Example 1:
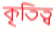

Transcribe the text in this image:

কৃতিত্ব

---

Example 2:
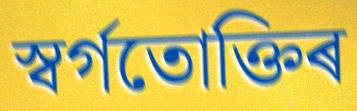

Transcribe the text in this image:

স্বৰ্গতোক্তিৰ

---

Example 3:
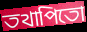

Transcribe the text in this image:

তথাপিতো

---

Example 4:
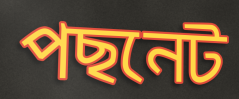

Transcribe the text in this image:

পছনেট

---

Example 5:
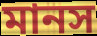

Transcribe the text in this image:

মানস